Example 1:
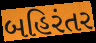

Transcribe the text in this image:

બહિરંતર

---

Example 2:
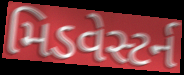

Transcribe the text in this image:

મિડવેસ્ટર્ન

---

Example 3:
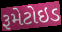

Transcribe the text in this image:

રૂમેટોઇડ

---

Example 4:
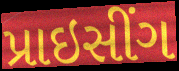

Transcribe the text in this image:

પ્રાઇસીંગ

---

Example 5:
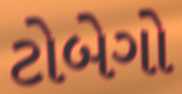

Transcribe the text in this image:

ટોબેગો